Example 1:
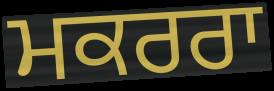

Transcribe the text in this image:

ਮਕਰਰਾ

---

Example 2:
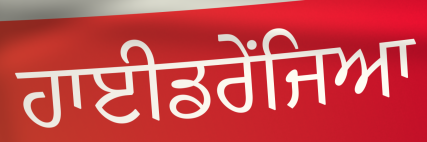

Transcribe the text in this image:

ਹਾਈਡਰੇਂਜਿਆ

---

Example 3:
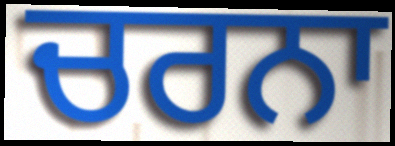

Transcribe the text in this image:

ਚਰਨਾ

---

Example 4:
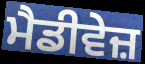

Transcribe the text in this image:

ਮੈਡੀਵੇਜ਼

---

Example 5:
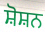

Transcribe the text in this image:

ਸ਼ੋਸ਼ਨ